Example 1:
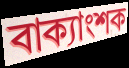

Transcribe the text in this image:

বাক্যাংশক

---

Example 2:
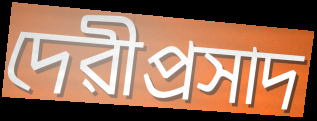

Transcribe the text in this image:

দেৱীপ্ৰসাদ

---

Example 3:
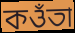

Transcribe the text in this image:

কওঁতা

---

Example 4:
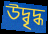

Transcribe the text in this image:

উদ্বৃদ্ধ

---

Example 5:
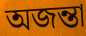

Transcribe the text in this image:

অজন্তা